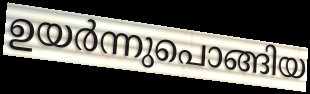
ഉയർന്നുപൊങ്ങിയ